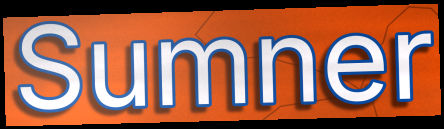
Sumner